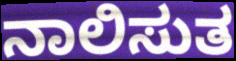
ನಾಲಿಸುತ